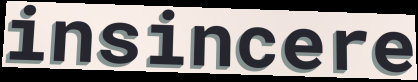
insincere